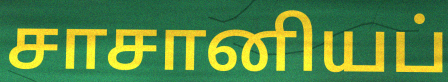
சாசானியப்